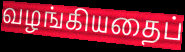
வழங்கியதைப்